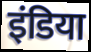
इंडिया